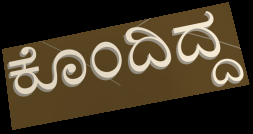
ಕೊಂದಿದ್ದ